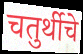
चतुर्थीचे